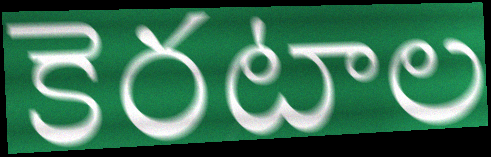
కెరటాల